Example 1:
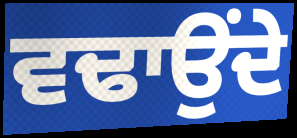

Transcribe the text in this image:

ਵਢਾਉਂਦੇ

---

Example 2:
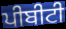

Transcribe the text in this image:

ਪੀਬੀਟੀ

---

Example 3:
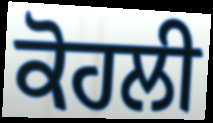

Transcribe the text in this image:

ਕੋਹਲੀ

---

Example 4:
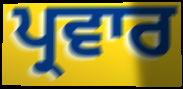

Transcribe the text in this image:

ਪ੍ਰਵਾਰ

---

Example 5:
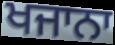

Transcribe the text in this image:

ਖਜਾਨਾ